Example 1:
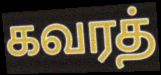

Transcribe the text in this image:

கவரத்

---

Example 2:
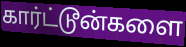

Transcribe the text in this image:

கார்ட்டூன்களை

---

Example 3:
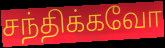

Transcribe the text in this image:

சந்திக்கவோ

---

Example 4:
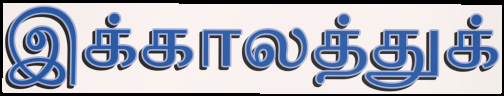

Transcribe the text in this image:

இக்காலத்துக்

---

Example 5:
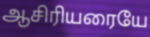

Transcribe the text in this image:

ஆசிரியரையே